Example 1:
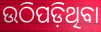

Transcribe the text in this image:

ଉଠିପଡ଼ିଥିବା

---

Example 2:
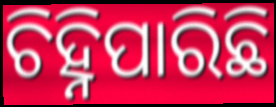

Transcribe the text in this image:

ଚିହ୍ନିପାରିଛି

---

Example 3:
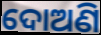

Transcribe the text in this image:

ଦୋଅଣି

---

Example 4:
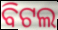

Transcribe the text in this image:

ବିଟଲ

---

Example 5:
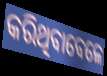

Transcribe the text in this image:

କରିଥିବାବେଳେ